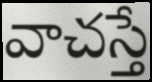
వాచస్తే